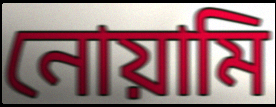
নোয়ামি